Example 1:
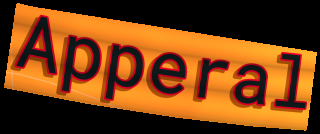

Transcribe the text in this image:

Apperal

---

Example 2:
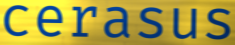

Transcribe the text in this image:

cerasus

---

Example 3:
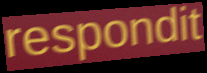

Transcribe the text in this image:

respondit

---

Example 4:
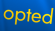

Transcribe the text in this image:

opted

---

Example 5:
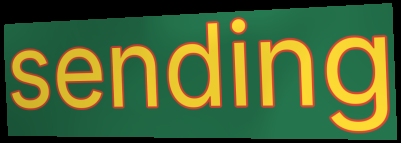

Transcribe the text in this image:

sending